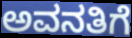
ಅವನತಿಗೆ